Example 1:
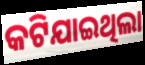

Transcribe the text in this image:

କଟିଯାଇଥିଲା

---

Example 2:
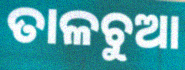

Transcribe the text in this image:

ତାଳଚୁଆ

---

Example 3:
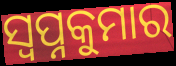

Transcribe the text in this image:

ସ୍ଵପ୍ନକୁମାର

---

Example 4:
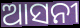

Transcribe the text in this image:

ଆସନୀ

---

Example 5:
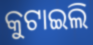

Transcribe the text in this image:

କୁଟାଇଲି